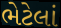
ભેટેલાં